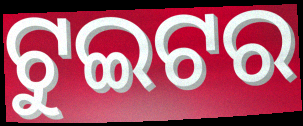
ଟୁଇଟର